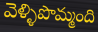
వెళ్ళిపొమ్మంది